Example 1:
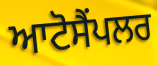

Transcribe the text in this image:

ਆਟੋਸੈਂਪਲਰ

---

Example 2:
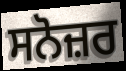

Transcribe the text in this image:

ਸਨੋਜ਼ਰ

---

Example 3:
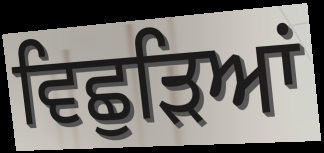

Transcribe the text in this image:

ਵਿਛੁੜਿਆਂ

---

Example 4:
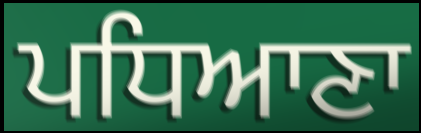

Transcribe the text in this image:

ਪਧਿਆਣਾ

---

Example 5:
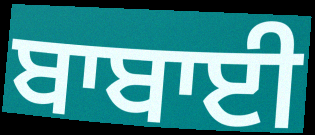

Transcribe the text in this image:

ਬਾਬਾਈ